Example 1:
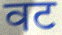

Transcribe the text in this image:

वट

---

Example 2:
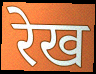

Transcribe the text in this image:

रेख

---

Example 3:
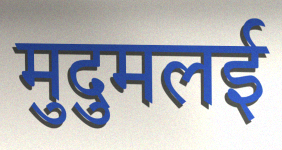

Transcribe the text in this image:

मुदुमलई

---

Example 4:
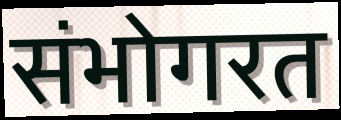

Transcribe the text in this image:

संभोगरत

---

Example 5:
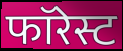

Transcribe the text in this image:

फॉरेस्ट